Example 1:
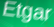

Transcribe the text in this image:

Etgar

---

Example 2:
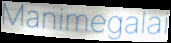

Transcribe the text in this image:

Manimegalai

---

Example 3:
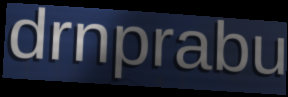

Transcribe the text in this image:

drnprabu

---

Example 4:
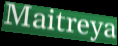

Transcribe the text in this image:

Maitreya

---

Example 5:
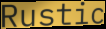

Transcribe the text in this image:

Rustic